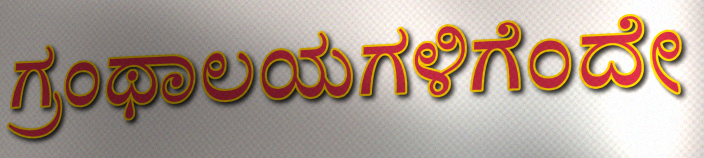
ಗ್ರಂಥಾಲಯಗಳಿಗೆಂದೇ